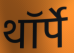
थॉर्पे